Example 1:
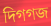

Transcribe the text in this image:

দিগগজ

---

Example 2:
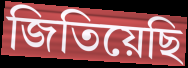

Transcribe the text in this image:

জিতিয়েছি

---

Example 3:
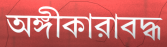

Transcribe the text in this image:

অঙ্গীকারাবদ্ধ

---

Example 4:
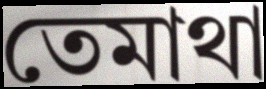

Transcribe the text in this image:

তেমাথা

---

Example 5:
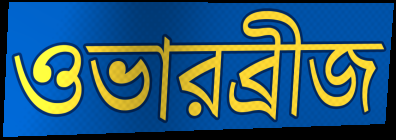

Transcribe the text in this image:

ওভারব্রীজ